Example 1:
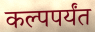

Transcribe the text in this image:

कल्पपर्यंत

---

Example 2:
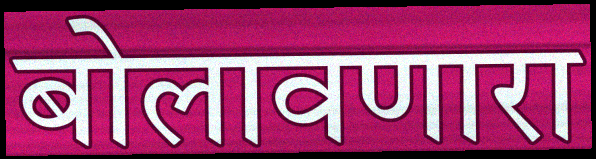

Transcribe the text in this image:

बोलावणारा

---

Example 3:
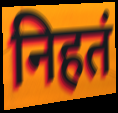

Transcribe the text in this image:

निहतं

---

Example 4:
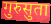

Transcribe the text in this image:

गुरुसुता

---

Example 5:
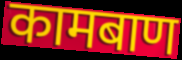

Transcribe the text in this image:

कामबाण